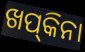
ଖପ୍‌କିନା